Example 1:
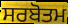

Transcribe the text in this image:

ਸਰਬੋਤਮ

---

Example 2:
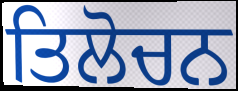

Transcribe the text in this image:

ਤਿਲੋਚਨ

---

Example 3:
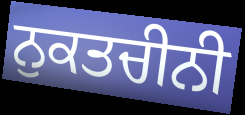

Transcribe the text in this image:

ਨੁਕਤਚੀਨੀ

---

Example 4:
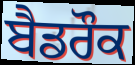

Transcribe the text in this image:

ਬੈਡਰੌਕ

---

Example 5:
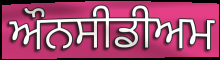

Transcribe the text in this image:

ਔਨਸੀਡੀਅਮ